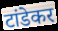
टांडेकर